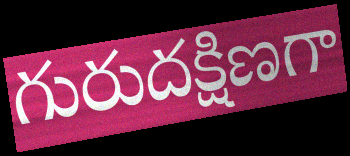
గురుదక్షిణగా